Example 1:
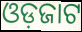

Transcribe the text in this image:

ଓଡ଼ଜାଟ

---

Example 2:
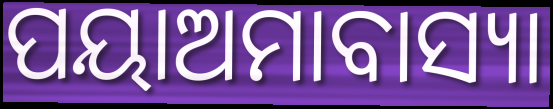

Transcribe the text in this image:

ପୟାଅମାବାସ୍ୟା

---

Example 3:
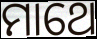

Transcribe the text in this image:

ମାଥେ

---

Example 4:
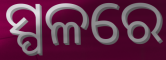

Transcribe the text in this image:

ସ୍ପଳରେ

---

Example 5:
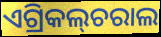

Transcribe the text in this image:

ଏଗ୍ରିକଲ୍‌ଚରାଲ